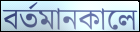
বর্তমানকালে